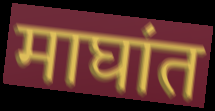
माघांत